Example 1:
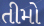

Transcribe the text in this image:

તીમો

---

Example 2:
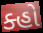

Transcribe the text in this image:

ક્હો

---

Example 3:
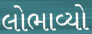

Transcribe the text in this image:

લોભાવ્યો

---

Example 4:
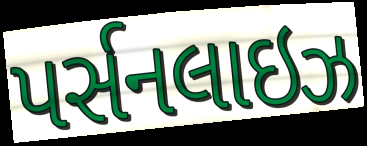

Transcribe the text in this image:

પર્સનલાઇઝ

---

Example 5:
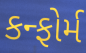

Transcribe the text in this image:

કન્ફોર્મ